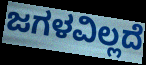
ಜಗಳವಿಲ್ಲದೆ